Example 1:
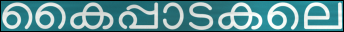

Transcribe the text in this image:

കൈപ്പാടകലെ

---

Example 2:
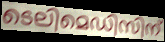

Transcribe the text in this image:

ടെലിമെഡിസിന്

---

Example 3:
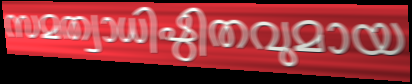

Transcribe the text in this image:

സമത്വാധിഷ്ഠിതവുമായ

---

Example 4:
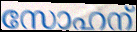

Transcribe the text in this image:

സോഹന്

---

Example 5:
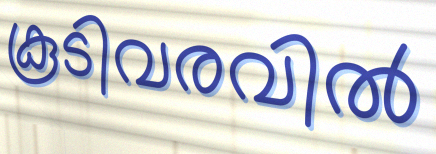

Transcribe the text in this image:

കൂടിവരവിൽ